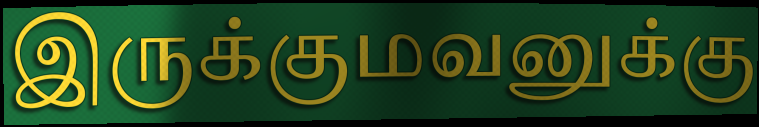
இருக்குமவனுக்கு